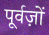
पूर्वज़ों